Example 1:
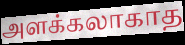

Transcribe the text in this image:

அளக்கலாகாத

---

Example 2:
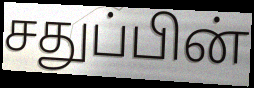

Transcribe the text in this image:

சதுப்பின்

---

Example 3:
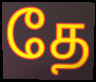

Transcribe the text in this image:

தே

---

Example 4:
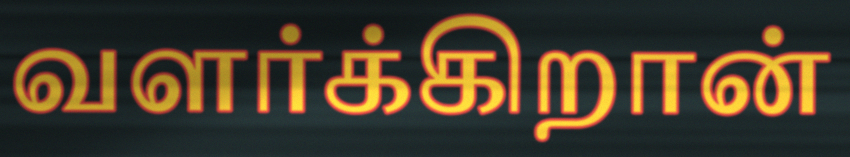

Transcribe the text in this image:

வளர்க்கிறான்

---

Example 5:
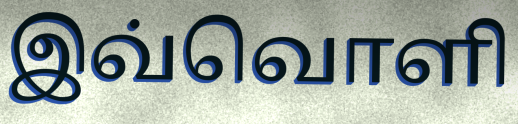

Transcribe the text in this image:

இவ்வொளி